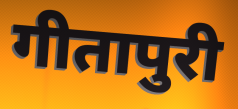
गीतापुरी